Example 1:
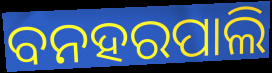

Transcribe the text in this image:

ବନହରପାଲି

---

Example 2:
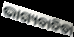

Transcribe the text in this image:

ଭାଗ୍ୟବାଦିତା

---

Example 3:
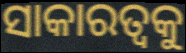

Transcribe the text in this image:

ସାକାରତ୍ଵକୁ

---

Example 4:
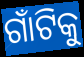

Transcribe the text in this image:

ଗାଁଟିକୁ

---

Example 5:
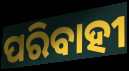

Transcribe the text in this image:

ପରିବାହୀ